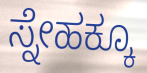
ಸ್ನೇಹಕ್ಕೂ